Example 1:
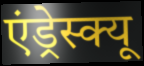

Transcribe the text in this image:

एंड्रेस्क्यू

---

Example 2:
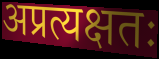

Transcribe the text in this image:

अप्रत्यक्षतः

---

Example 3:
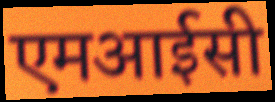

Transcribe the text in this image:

एमआईसी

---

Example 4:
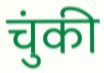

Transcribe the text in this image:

चुंकी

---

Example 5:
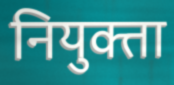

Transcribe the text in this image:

नियुक्ता